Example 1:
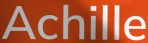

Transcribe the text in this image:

Achille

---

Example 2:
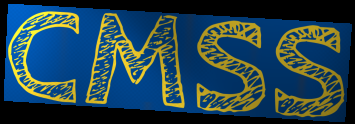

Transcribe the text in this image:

CMSS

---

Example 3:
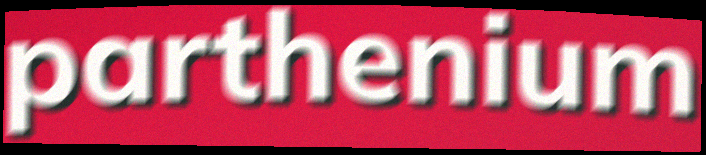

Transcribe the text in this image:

parthenium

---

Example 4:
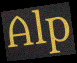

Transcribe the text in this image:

Alp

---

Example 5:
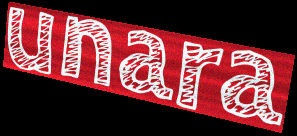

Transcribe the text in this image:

unara